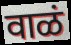
वाळं